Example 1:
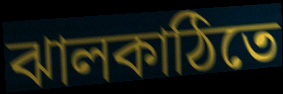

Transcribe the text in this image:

ঝালকাঠিতে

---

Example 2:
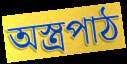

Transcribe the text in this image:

অস্ত্রপাঠ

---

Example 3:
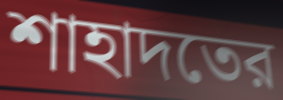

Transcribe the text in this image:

শাহাদতের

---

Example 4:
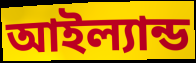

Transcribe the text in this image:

আইল্যান্ড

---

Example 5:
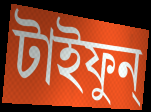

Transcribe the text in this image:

টাইফুন্